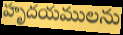
హృదయములను